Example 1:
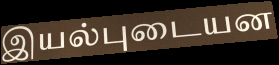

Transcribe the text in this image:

இயல்புடையன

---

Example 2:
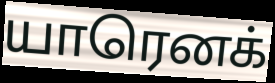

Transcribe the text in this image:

யாரெனக்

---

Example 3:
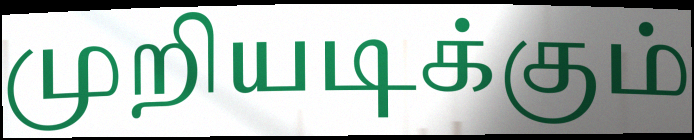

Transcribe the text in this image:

முறியடிக்கும்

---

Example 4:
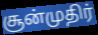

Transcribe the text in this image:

சூன்முதிர்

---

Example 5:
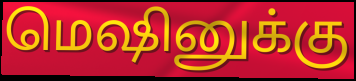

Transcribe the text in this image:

மெஷினுக்கு